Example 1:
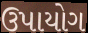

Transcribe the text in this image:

ઉપાયોગ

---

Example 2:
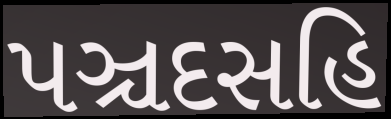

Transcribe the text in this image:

પઞ્ચદસહિ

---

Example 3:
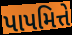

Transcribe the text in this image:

પાપમિત્તે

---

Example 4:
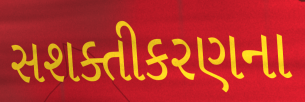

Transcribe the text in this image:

સશક્તીકરણના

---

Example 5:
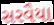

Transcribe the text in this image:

સરવૈયા